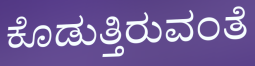
ಕೊಡುತ್ತಿರುವಂತೆ